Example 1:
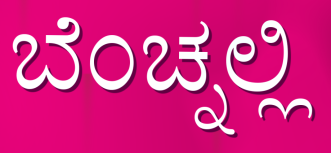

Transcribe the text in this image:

ಬೆಂಚ್ನಲ್ಲಿ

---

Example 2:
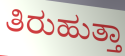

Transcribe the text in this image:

ತಿರುಹುತ್ತಾ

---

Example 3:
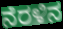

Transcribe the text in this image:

ನೆರಳಿನ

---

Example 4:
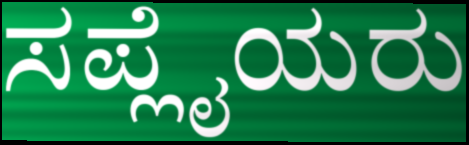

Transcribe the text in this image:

ಸಪ್ಲೈಯರು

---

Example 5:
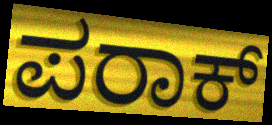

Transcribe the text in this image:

ಪರಾಕ್